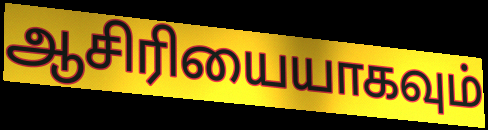
ஆசிரியையாகவும்